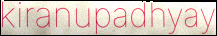
kiranupadhyay